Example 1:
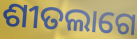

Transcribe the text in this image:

ଶୀତଲାଗେ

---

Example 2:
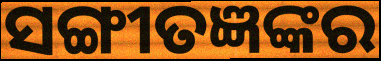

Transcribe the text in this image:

ସଙ୍ଗୀତଜ୍ଞଙ୍କର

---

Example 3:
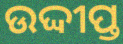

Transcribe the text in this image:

ଉଦ୍ଦୀପ୍ତ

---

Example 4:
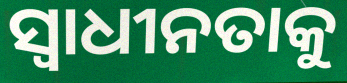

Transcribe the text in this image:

ସ୍ୱାଧୀନତାକୁ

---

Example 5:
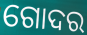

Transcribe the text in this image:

ଗୋଦର